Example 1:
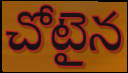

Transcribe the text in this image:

చోటైన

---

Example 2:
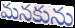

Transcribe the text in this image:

మనకును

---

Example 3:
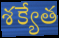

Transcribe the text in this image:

శక్యేత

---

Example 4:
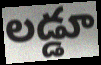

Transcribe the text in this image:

లడ్డూ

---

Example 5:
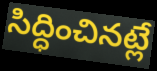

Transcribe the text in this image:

సిద్ధించినట్లే